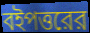
বইপত্তরের